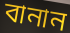
বানান